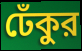
ঢেঁকুর